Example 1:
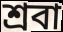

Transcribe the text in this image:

শ্রবা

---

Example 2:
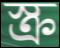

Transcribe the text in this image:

স্ক্র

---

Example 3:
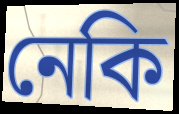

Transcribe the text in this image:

নেকি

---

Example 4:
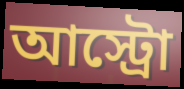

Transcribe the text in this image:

আস্ট্রো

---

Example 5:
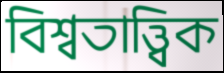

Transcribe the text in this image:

বিশ্বতাত্ত্বিক